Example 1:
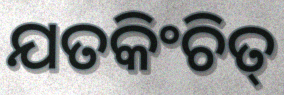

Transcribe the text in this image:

ଯତକିଂଚିତ୍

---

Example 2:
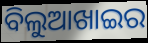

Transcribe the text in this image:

ବିଲୁଆଖାଇର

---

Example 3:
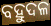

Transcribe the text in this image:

ବହୁଦଳ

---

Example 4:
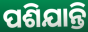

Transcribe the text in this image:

ପଶିଯାନ୍ତି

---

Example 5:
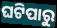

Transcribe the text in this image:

ଘଟିପାରୁ